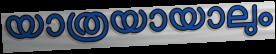
യാത്രയായാലും